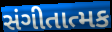
સંગીતાત્મક